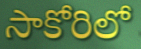
సాకోరిలో